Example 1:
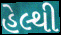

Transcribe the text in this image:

હેલ્થી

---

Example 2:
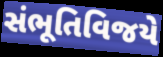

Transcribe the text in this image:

સંભૂતિવિજયે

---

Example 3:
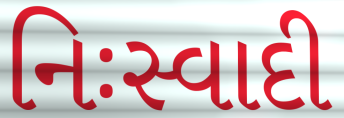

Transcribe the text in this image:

નિઃસ્વાદી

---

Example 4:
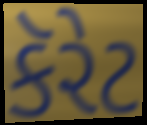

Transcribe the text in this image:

કૅરેટ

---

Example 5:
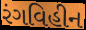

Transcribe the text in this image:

રંગવિહીન